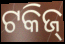
ଟକିଜ୍